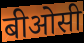
बीओसी